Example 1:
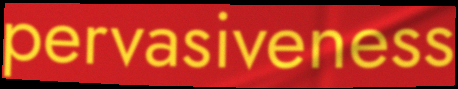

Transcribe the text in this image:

pervasiveness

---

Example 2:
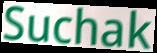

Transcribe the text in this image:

Suchak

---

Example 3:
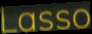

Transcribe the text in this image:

Lasso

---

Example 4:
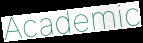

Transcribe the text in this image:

Academic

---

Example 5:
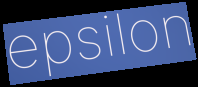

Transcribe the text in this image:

epsilon